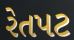
રેતપટ